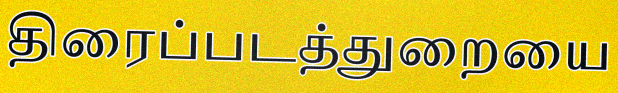
திரைப்படத்துறையை